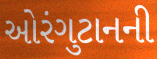
ઓરંગુટાનની